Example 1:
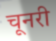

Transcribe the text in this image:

चूनरी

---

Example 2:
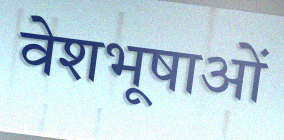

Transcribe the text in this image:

वेशभूषाओं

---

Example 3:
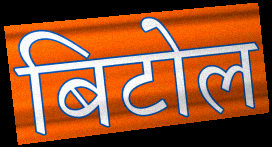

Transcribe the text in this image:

बिटोल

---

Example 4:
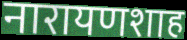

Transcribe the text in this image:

नारायणशाह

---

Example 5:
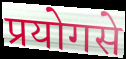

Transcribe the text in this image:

प्रयोगसे